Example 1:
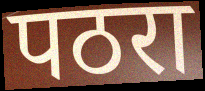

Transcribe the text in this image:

पठरा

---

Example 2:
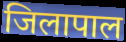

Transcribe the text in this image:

जिलापाल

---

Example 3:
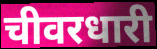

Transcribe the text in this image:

चीवरधारी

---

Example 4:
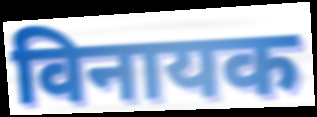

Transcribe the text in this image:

विनायक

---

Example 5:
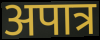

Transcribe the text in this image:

अपात्र